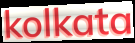
kolkata